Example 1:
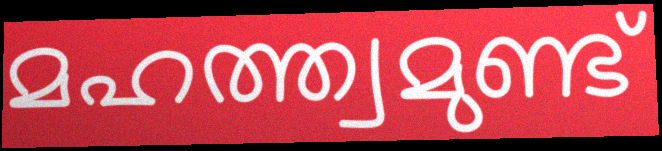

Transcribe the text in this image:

മഹത്ത്വമുണ്ട്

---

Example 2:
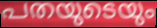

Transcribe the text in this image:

പതയുടെയും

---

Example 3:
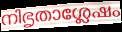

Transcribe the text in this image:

നിഭൃതാശ്ലേഷം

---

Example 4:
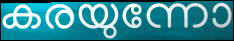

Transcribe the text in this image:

കരയുന്നോ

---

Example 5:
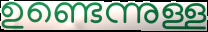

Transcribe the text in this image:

ഉണ്ടെന്നുള്ള